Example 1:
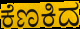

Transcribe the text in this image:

ಕೆಣಕಿದ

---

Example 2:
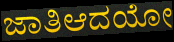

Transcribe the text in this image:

ಜಾತಿಆದಯೋ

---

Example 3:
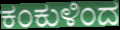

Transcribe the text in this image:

ಕಂಕುಳಿಂದ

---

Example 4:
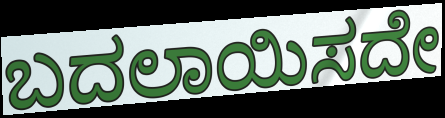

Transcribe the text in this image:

ಬದಲಾಯಿಸದೇ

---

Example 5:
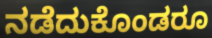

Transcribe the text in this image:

ನಡೆದುಕೊಂಡರೂ